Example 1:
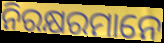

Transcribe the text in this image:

ନିରକ୍ଷରମାନେ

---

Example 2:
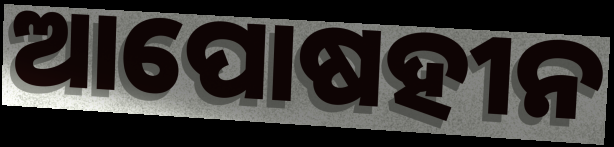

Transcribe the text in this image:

ଆପୋଷହୀନ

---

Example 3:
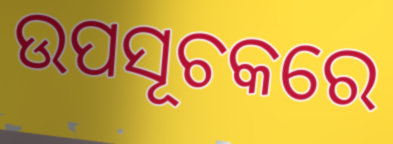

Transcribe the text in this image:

ଉପସୂଚକରେ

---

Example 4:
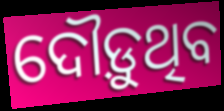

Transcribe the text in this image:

ଦୌଡ଼ୁଥିବ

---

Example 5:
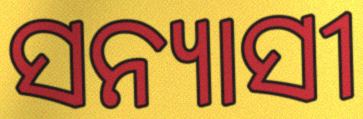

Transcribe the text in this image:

ସନ୍ଯାସୀ